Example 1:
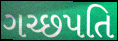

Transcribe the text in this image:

ગચ્છપતિ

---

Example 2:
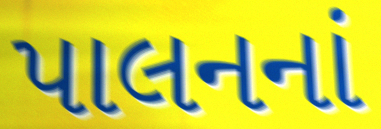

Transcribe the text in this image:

પાલનનાં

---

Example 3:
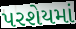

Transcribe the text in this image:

પરશેયમાં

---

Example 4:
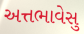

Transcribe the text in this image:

અત્તભાવેસુ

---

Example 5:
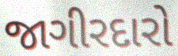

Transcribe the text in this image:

જાગીરદારો